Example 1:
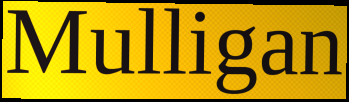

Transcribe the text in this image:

Mulligan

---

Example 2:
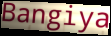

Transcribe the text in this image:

Bangiya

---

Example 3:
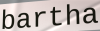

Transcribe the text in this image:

bartha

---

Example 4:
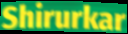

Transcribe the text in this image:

Shirurkar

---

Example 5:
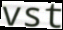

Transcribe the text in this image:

vst